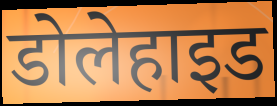
डोलेहाइड